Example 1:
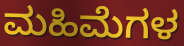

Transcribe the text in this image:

ಮಹಿಮೆಗಳ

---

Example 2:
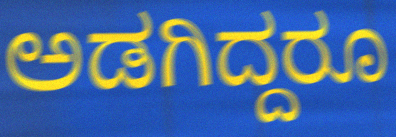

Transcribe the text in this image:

ಅಡಗಿದ್ದರೂ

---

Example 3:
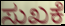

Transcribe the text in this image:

ಸುಖಕೆ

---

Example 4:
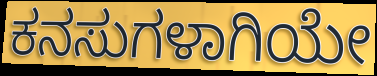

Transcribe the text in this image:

ಕನಸುಗಳಾಗಿಯೇ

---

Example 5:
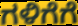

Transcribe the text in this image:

ಗಳಿಗೆಗೆ